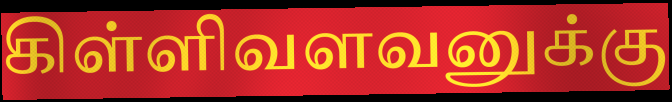
கிள்ளிவளவனுக்கு